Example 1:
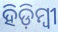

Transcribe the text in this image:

ହିଡ଼ିମ୍ବୀ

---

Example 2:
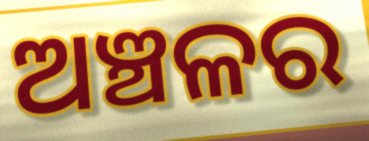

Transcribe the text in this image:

ଅଞ୍ଚଳର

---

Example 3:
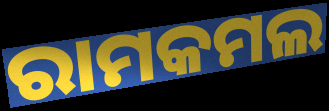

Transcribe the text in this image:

ରାମକମଲ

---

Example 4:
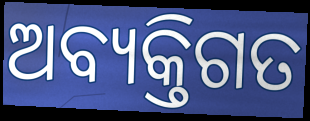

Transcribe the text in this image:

ଅବ୍ୟକ୍ତିଗତ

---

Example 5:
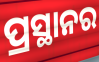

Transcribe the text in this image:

ପ୍ରସ୍ଥାନର